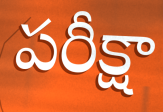
పరీక్షా